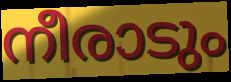
നീരാടും